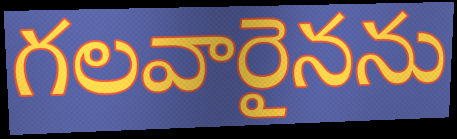
గలవారైనను